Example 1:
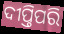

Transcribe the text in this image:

ଦୀପ୍ତିପରି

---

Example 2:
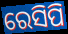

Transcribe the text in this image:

ରେସିପି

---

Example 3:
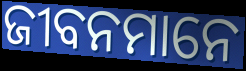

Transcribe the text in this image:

ଜୀବନମାନେ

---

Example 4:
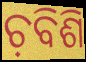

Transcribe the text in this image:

ଚ଼ବିଶି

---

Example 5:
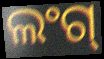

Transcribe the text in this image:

ଲଂଗ୍